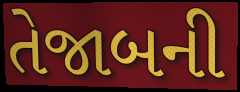
તેજાબની